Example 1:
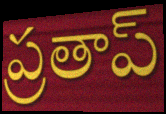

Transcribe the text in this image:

ప్రతాప్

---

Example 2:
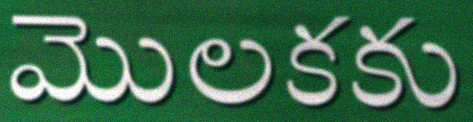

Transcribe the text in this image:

మొలకకు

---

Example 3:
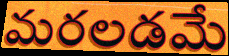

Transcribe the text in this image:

మరలడమే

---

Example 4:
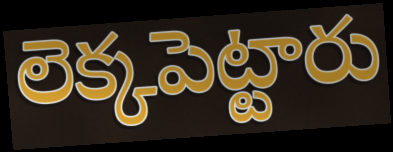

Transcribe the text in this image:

లెక్కపెట్టారు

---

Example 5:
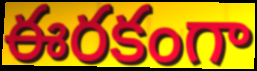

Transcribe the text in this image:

ఈరకంగా